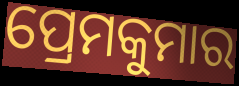
ପ୍ରେମକୁମାର